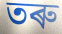
তৰু